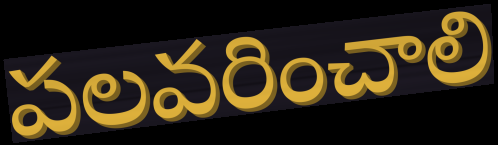
పలవరించాలి